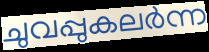
ചുവപ്പുകലർന്ന